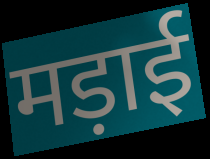
मड़ाई